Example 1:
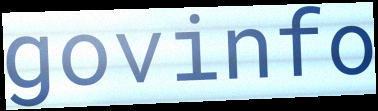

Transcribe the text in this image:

govinfo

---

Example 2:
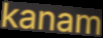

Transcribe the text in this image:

kanam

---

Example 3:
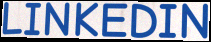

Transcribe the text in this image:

LINKEDIN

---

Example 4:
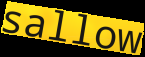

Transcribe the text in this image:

sallow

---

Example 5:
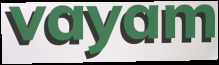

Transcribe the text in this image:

vayam